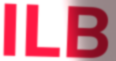
ILB